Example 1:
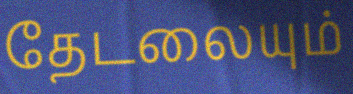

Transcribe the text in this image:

தேடலையும்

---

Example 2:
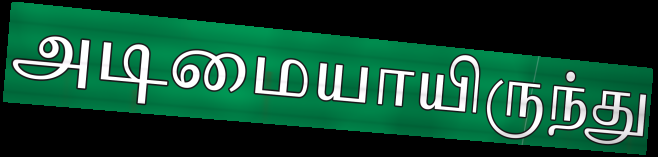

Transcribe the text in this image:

அடிமையாயிருந்து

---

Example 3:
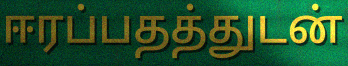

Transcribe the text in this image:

ஈரப்பதத்துடன்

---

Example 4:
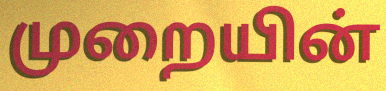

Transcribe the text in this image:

முறையின்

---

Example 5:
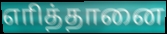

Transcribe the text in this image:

எரித்தானை